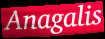
Anagalis